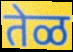
तेळ